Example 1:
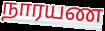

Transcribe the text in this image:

நாரயண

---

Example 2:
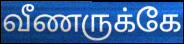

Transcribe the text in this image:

வீணருக்கே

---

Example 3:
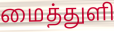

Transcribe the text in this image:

மைத்துளி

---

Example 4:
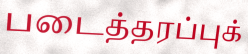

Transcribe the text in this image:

படைத்தரப்புக்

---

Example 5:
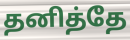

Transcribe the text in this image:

தனித்தே